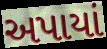
અપાયાં